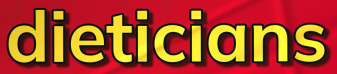
dieticians